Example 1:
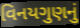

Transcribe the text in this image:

વિનયગુણનું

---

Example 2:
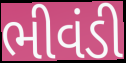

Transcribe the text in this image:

ભીવંડી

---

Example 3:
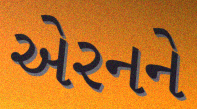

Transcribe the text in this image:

એરનને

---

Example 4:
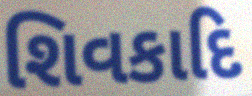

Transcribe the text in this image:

શિવકાદિ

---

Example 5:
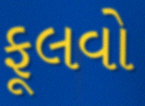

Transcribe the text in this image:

ફૂલવો